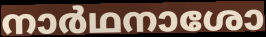
നാർഥനാശോ